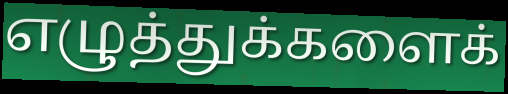
எழுத்துக்களைக்